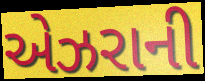
એઝરાની